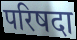
परिषदा